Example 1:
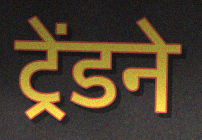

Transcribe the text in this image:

ट्रेंडने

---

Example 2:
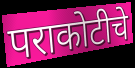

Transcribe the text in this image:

पराकोटीचे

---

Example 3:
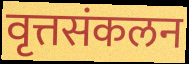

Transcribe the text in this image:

वृत्तसंकलन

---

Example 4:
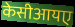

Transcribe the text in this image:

केसीआयए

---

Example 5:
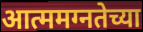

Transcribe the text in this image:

आत्ममग्नतेच्या